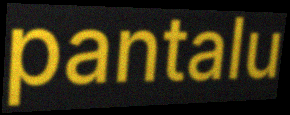
pantalu